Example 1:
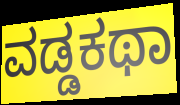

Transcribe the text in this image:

ವಡ್ಡಕಥಾ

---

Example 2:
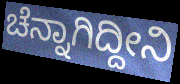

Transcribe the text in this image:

ಚೆನ್ನಾಗಿದ್ದೀನಿ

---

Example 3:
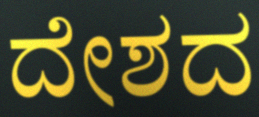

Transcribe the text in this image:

ದೇಶದ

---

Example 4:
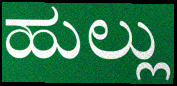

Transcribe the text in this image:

ಹುಲ್ಲು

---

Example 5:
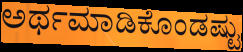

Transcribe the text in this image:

ಅರ್ಥಮಾಡಿಕೊಂಡಷ್ಟು